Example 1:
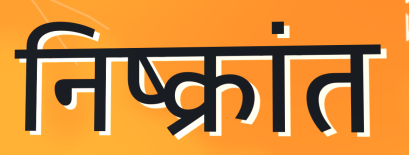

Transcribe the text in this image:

निष्क्रांत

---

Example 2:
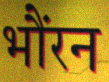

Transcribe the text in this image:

भौंरन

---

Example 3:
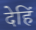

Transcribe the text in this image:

देहिं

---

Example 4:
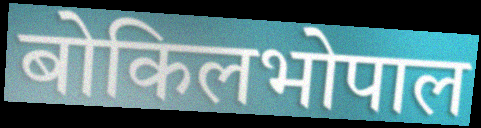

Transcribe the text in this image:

बोकिलभोपाल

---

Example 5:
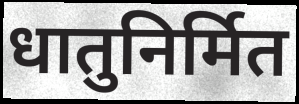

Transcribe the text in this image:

धातुनिर्मित